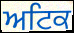
ਅਟਿਕ